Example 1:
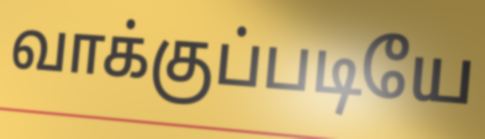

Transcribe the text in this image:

வாக்குப்படியே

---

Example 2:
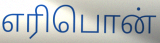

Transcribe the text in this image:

எரிபொன்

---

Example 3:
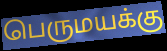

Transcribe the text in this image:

பெருமயக்கு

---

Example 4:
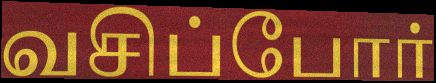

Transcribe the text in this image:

வசிப்போர்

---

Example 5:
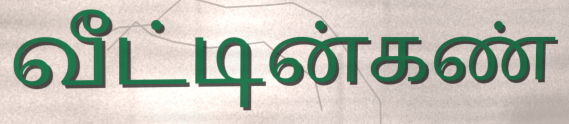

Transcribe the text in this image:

வீட்டின்கண்